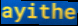
ayithe